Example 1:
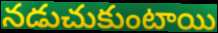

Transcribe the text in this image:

నడుచుకుంటాయి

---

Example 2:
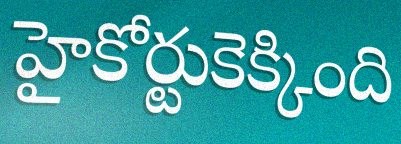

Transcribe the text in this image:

హైకోర్టుకెక్కింది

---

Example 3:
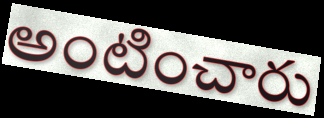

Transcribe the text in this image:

అంటించారు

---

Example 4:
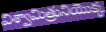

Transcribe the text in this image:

విశ్వామిత్రునియొక్క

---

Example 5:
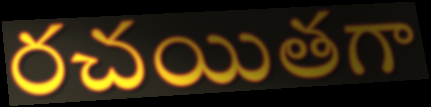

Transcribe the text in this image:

రచయితగా